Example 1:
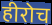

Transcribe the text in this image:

हीरोच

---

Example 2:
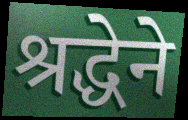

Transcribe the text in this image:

श्रद्धेने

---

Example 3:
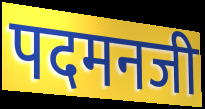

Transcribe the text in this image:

पदमनजी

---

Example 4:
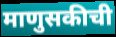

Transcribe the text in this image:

माणुसकीची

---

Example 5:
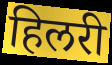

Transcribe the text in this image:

हिलरी